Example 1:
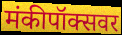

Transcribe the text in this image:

मंकीपॉक्सवर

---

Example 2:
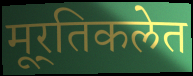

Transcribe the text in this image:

मूर्तिकलेत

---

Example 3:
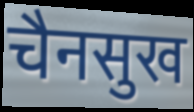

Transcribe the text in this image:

चैनसुख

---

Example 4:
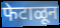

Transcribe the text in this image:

फेटाळून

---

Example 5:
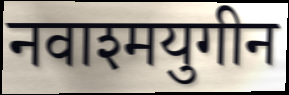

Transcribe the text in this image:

नवाश्मयुगीन